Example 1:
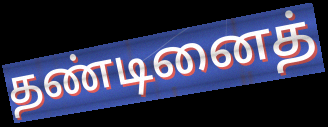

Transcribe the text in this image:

தண்டினைத்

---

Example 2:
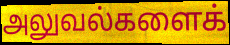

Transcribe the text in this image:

அலுவல்களைக்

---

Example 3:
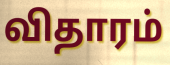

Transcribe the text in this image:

விதாரம்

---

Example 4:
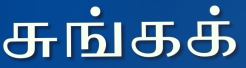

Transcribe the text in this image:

சுங்கக்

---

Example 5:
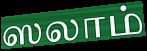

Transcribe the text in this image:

ஸலாம்